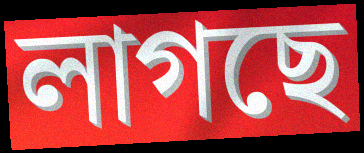
লাগছে